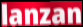
lanzan